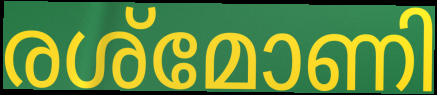
രശ്മോണി